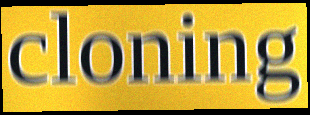
cloning